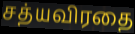
சத்யவிரதை